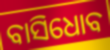
ବାସିଧୋବ